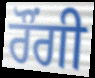
ਰੌਂਗੀ